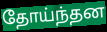
தோய்ந்தன